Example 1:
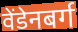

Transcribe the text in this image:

वेंडेनबर्ग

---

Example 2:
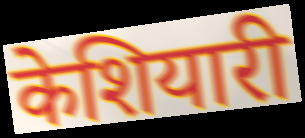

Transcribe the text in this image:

केशियारी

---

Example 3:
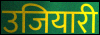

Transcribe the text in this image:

उजियारी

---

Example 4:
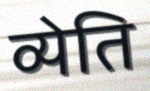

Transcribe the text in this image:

व्येति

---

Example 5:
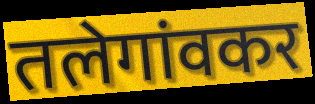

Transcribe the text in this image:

तलेगांवकर